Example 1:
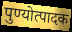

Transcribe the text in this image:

पुण्योत्पादक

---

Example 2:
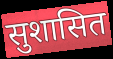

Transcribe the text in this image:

सुशासित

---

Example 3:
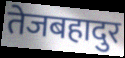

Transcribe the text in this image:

तेजबहादुर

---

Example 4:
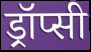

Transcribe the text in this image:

ड्रॉप्सी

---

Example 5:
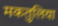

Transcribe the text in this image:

मकतुलिया